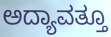
ಅದ್ಯಾವತ್ತೂ